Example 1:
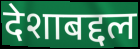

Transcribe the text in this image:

देशाबद्दल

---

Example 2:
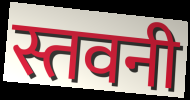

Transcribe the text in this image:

स्तवनी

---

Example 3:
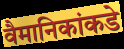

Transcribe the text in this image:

वैमानिकांकडे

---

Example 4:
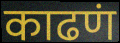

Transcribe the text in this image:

काढणं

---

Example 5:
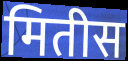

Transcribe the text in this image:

मितीस